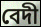
বেদী